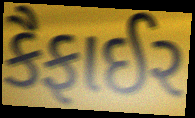
કૈફાઈર